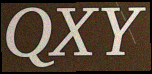
QXY